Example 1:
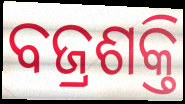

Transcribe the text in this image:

ବଜ୍ରଶକ୍ତି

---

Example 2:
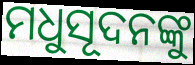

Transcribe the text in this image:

ମଧୁସୂଦନଙ୍କୁ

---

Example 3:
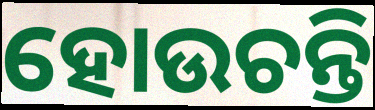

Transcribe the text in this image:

ହୋଉଚନ୍ତି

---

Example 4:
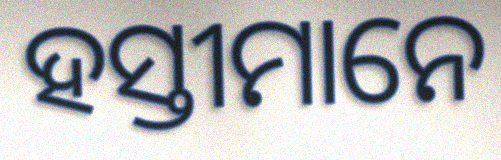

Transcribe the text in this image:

ହସ୍ତୀମାନେ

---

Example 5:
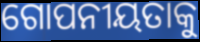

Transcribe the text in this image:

ଗୋପନୀୟତାକୁ